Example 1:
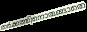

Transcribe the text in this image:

തർക്കത്തിനൊരുങ്ങാതെ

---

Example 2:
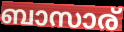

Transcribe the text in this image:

ബാസാര്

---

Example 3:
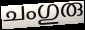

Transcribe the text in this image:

ചംഗുരു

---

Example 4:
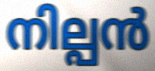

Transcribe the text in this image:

നില്പൻ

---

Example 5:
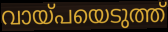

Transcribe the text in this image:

വായ്പയെടുത്ത്